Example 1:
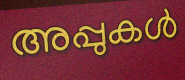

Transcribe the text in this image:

അപ്പുകൾ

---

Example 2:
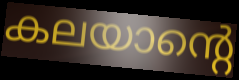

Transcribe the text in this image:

കലയാന്റെ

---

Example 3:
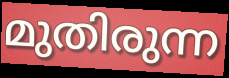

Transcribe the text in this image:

മുതിരുന്ന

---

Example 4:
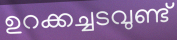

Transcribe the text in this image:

ഉറക്കച്ചടവുണ്ട്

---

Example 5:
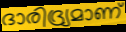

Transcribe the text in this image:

ദാരിദ്ര്യമാണ്